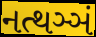
નત્થઞ્ઞં